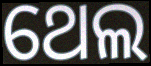
ଥେଲ